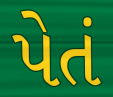
પેતં